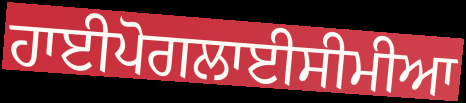
ਹਾਈਪੋਗਲਾਈਸੀਮੀਆ